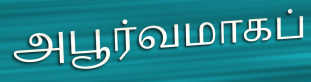
அபூர்வமாகப்